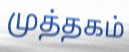
முத்தகம்